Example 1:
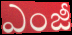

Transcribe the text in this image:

ఎంజీ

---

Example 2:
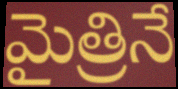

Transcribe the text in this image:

మైత్రినే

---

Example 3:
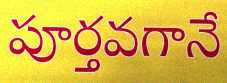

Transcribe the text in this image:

పూర్తవగానే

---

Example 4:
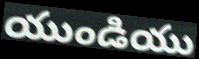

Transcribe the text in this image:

యుండియు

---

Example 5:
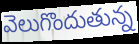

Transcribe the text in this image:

వెలుగొందుతున్న